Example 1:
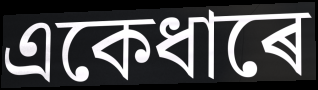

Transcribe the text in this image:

একেধাৰে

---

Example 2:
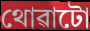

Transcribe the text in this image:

থোৱাটো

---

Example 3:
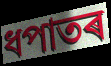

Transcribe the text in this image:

ধপাতৰ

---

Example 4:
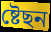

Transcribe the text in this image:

ষ্টেছন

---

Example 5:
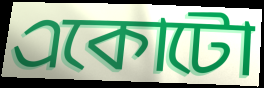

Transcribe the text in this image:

একোটো